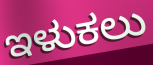
ಇಳುಕಲು